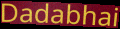
Dadabhai